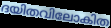
ദയിതവിലോകിത